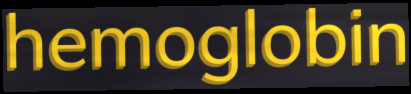
hemoglobin